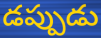
డప్పుడు